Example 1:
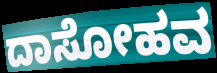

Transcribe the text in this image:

ದಾಸೋಹವ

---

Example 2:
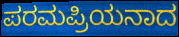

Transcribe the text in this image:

ಪರಮಪ್ರಿಯನಾದ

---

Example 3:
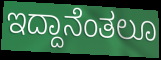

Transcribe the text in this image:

ಇದ್ದಾನೆಂತಲೂ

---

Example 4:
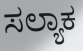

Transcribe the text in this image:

ಸಲ್ಯಾಕ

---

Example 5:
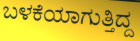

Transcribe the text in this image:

ಬಳಕೆಯಾಗುತ್ತಿದ್ದ